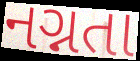
નગ્નતા